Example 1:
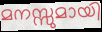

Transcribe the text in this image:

മനസ്സുമായി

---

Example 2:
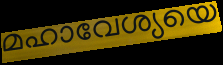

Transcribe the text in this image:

മഹാവേശ്യയെ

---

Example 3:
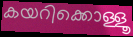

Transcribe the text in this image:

കയറിക്കൊള്ളൂ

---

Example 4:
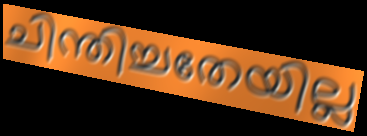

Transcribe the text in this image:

ചിന്തിച്ചതേയില്ല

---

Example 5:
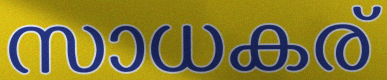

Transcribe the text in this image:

സാധകര്